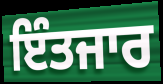
ਇੰਤਜਾਰ